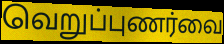
வெறுப்புணர்வை